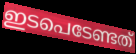
ഇടപെടേണ്ടത്